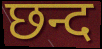
छन्द